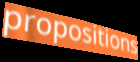
propositions